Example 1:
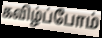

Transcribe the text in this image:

கவிழ்ப்போம்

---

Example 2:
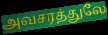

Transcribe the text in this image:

அவசரத்துலே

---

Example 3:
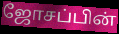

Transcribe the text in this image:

ஜோசப்பின்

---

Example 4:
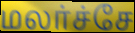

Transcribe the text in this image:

மலர்ச்சே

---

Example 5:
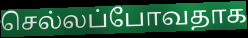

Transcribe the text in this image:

செல்லப்போவதாக